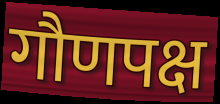
गौणपक्ष